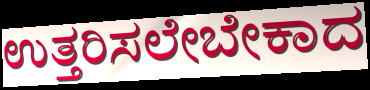
ಉತ್ತರಿಸಲೇಬೇಕಾದ